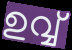
ഉവ്വ്